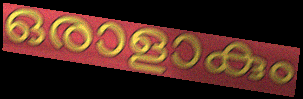
ഒരാളാകും